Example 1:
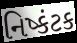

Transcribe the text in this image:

નિષ્કંટક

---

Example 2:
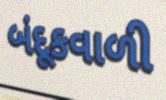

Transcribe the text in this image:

બંદૂકવાળી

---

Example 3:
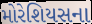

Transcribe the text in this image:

મોરેશિયસના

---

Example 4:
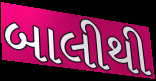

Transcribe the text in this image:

બાલીથી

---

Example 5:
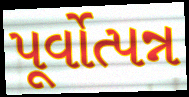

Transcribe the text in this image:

પૂર્વોત્પન્ન